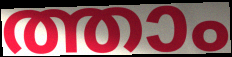
ത്താം